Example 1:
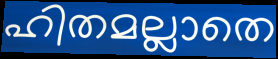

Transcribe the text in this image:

ഹിതമല്ലാതെ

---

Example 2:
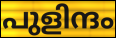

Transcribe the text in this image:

പുളിന്ദം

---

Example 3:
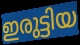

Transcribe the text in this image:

ഇരുട്ടിയ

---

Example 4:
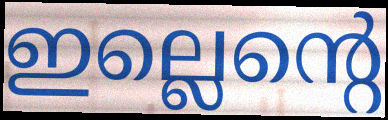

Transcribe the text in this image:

ഇല്ലെന്റെ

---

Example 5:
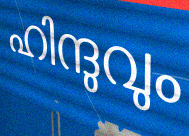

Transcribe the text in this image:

ഹിന്ദുവും